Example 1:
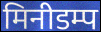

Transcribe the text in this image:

मिनीडम्प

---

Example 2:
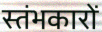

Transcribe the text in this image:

स्तंभकारों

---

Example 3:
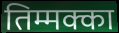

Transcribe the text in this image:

तिम्मक्का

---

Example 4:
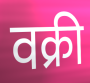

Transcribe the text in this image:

वक्री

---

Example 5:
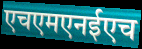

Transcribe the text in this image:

एचएमएनईएच